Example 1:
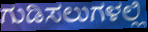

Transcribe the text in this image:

ಗುಡಿಸಲುಗಳಲ್ಲಿ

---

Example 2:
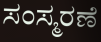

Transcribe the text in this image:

ಸಂಸ್ಮರಣೆ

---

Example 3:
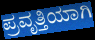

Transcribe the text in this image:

ಪ್ರವೃತ್ತಿಯಾಗಿ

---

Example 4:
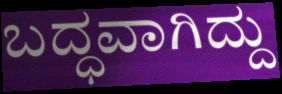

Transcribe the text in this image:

ಬದ್ಧವಾಗಿದ್ದು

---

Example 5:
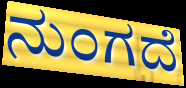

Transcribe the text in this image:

ನುಂಗದೆ